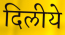
दिलीये